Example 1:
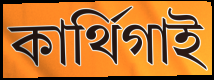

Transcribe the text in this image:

কার্থিগাই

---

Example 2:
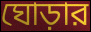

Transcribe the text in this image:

ঘোড়ার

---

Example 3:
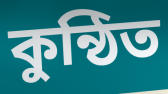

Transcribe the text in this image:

কুন্ঠিত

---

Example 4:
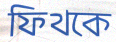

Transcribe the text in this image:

ফিথকে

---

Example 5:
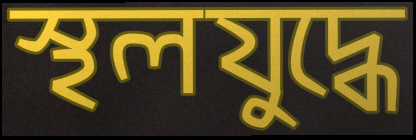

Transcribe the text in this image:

স্থলযুদ্ধে